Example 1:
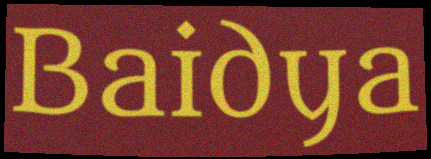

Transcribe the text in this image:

Baidya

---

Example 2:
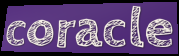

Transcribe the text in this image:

coracle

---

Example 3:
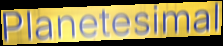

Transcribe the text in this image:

Planetesimal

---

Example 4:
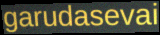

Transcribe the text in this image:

garudasevai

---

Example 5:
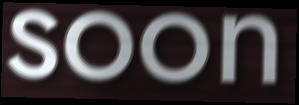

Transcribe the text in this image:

soon